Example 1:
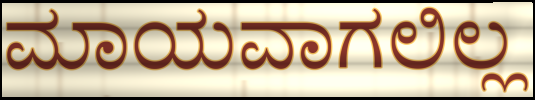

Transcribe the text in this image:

ಮಾಯವಾಗಲಿಲ್ಲ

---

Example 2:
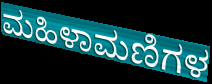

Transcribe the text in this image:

ಮಹಿಳಾಮಣಿಗಳ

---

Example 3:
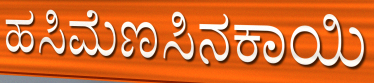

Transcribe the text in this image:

ಹಸಿಮೆಣಸಿನಕಾಯಿ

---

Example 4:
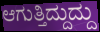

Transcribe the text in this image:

ಆಗುತ್ತಿದ್ದುದ್ದು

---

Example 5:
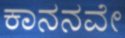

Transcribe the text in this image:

ಕಾನನವೇ